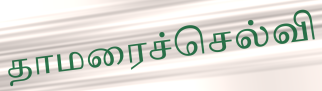
தாமரைச்செல்வி